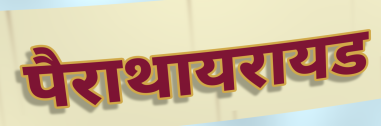
पैराथायरायड